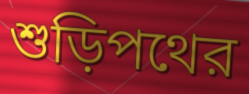
শুড়িপথের